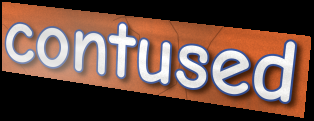
contused